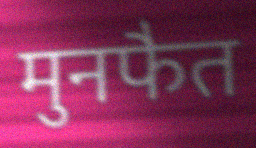
मुनफैत